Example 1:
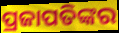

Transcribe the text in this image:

ପ୍ରଜାପତିଙ୍କର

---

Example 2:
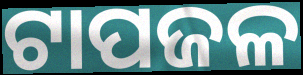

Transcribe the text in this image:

ଟାପଜଳ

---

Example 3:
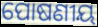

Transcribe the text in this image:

ପୋଷଣୀୟ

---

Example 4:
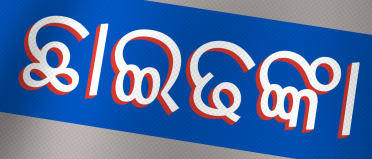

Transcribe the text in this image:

ଛାଇଢଙ୍କା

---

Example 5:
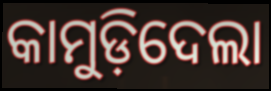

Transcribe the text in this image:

କାମୁଡ଼ିଦେଲା